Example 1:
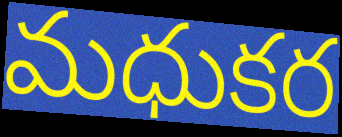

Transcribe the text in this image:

మధుకర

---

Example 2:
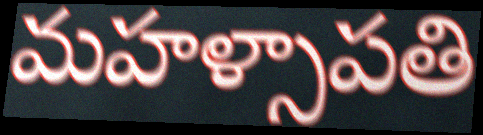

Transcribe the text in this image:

మహళ్సాపతి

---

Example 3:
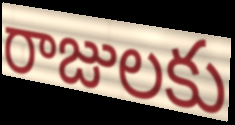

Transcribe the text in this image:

రాజులకు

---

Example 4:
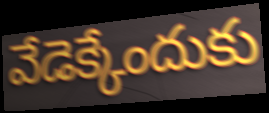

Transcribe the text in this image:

వేడెక్కేందుకు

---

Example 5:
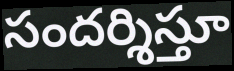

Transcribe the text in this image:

సందర్శిస్తూ